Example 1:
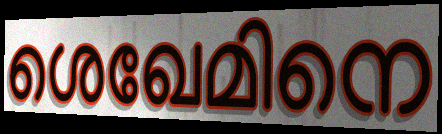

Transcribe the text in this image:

ശെഖേമിനെ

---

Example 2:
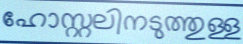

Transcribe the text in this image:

ഹോസ്റ്റലിനടുത്തുള്ള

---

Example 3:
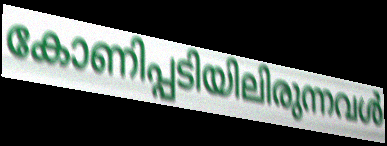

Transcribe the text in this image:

കോണിപ്പടിയിലിരുന്നവൾ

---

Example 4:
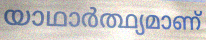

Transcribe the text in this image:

യാഥാർത്ഥ്യമാണ്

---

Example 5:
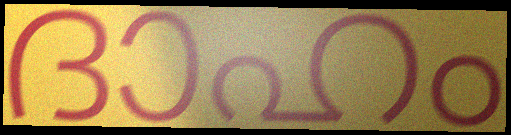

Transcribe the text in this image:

ദാഹം